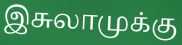
இசுலாமுக்கு